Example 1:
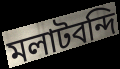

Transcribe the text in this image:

মলাটবন্দি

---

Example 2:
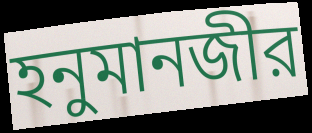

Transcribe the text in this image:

হনুমানজীর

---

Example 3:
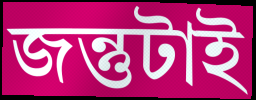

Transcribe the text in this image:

জন্তুটাই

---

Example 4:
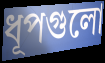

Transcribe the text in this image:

ধূপগুলো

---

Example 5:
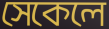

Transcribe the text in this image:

সেকেলে